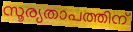
സൂര്യതാപത്തിന്